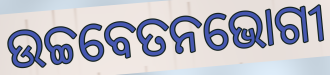
ଉଚ୍ଚବେତନଭୋଗୀ